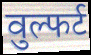
वुल्फर्ट